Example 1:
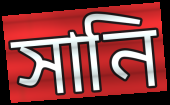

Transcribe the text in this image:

সানি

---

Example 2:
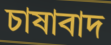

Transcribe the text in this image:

চাষাবাদ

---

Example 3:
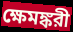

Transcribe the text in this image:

ক্ষেমঙ্করী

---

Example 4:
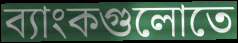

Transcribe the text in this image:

ব্যাংকগুলোতে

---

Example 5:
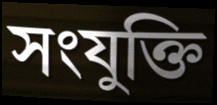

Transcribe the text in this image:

সংযুক্তি